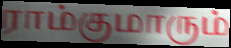
ராம்குமாரும்